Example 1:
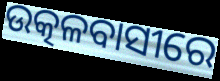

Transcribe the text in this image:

ଉତ୍କଳବାସୀରେ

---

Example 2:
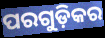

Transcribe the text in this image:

ପରଗୁଡ଼ିକର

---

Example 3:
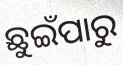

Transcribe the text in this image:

ଛୁଇଁପାରୁ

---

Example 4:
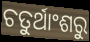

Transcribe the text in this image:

ଚତୁର୍ଥାଂଶରୁ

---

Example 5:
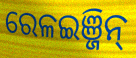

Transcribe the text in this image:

ରେଳଇଞ୍ଜିନ୍